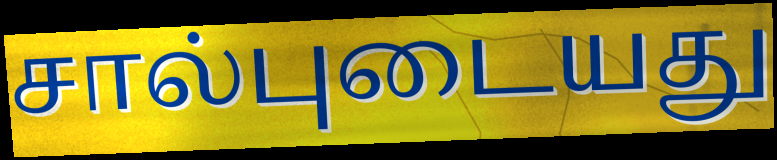
சால்புடையது